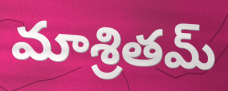
మాశ్రితమ్